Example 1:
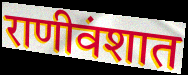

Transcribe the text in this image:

राणीवंशात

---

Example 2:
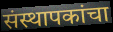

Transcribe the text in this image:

संस्थापकांचा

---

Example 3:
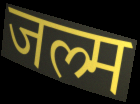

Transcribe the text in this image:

जल्म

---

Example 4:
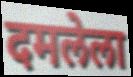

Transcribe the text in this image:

दमलेला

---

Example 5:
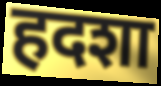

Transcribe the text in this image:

हदशा